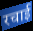
रचाई